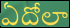
ఏదోలా